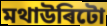
মথাউৰিটো